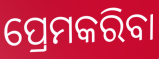
ପ୍ରେମକରିବା